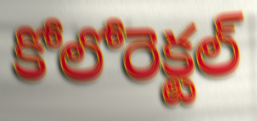
కోలోరెక్టల్